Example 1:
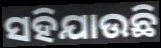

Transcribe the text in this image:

ସହିଯାଉଛି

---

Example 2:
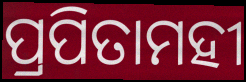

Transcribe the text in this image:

ପ୍ରପିତାମହୀ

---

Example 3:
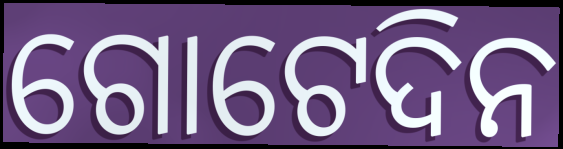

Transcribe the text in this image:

ଗୋଟେଦିନ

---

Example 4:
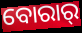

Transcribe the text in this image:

ବୋରାର୍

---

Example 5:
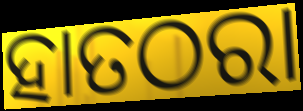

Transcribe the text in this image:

ହାତଠରା